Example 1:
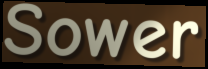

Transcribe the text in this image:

Sower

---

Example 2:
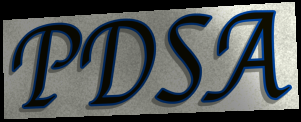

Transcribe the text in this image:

PDSA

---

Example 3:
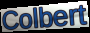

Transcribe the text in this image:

Colbert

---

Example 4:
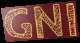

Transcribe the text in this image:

GNI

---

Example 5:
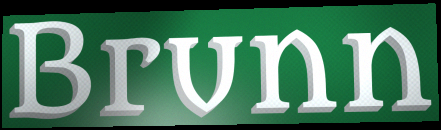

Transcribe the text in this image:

Brunn